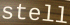
stell